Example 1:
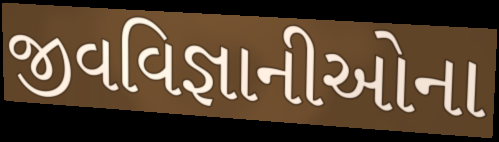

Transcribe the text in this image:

જીવવિજ્ઞાનીઓના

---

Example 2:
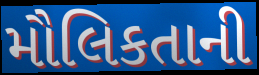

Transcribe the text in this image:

મૌલિકતાની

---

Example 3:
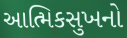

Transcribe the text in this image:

આત્મિકસુખનો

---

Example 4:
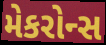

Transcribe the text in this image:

મેકરોન્સ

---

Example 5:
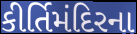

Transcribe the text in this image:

કીર્તિમંદિરના